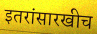
इतरांसारखीच